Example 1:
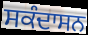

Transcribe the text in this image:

ਸਕੰਦਾਸਨ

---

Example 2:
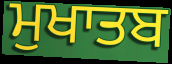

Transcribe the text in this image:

ਮੁਖਾਤਬ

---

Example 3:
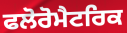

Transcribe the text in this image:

ਫਲੋਰੋਮੈਟਰਿਕ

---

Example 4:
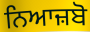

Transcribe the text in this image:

ਨਿਆਜ਼ਬੋ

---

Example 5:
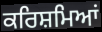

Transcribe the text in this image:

ਕਰਿਸ਼ਮਿਆਂ